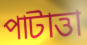
পাটাত্তা